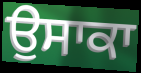
ਉਸਾਕਾ